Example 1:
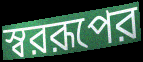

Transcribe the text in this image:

স্বররূপের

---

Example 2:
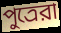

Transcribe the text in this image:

পুত্রেরা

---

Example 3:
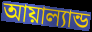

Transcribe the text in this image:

আয়াল্যান্ড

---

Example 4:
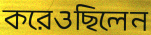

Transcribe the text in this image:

করেওছিলেন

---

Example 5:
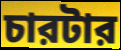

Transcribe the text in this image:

চারটার